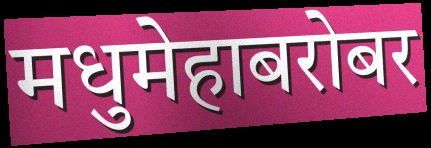
मधुमेहाबरोबर